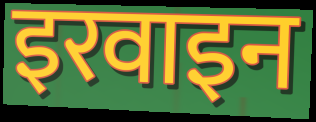
इरवाइन